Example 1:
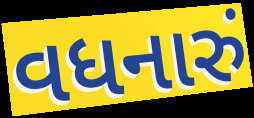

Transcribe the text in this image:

વધનારું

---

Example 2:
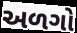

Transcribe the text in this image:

અળગો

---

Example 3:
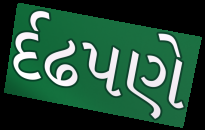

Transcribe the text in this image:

ર્દઢપણે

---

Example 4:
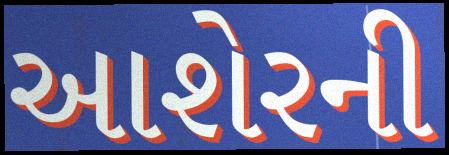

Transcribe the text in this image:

આશેરની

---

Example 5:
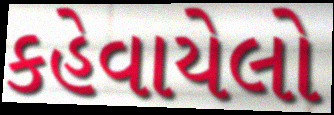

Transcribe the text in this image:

કહેવાયેલો